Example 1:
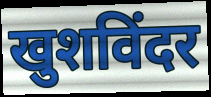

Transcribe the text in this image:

खुशविंदर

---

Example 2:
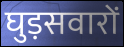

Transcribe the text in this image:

घुड़सवारों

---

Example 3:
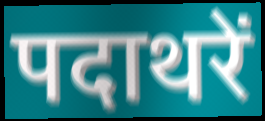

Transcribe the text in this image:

पदाथरें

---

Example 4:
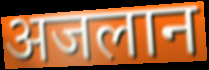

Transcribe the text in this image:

अजलान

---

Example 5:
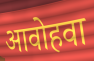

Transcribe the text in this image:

आवोहवा